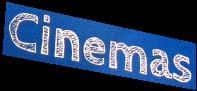
Cinemas